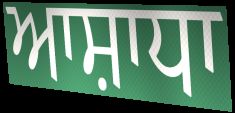
ਆਸ਼ਾਧਾ